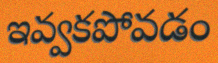
ఇవ్వకపోవడం